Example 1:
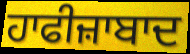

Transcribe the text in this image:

ਹਾਫੀਜ਼ਾਬਾਦ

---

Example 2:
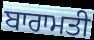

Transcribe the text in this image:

ਬਾਰਾਮਤੀ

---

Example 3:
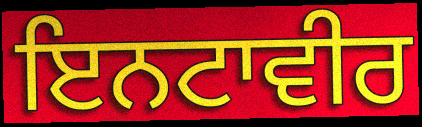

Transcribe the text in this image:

ਇਨਟਾਵੀਰ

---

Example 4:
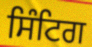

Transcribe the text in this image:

ਸਿੰਟਿਗ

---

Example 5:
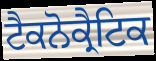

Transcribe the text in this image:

ਟੈਕਨੋਕ੍ਰੈਟਿਕ